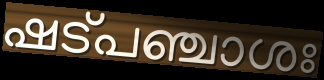
ഷട്പഞ്ചാശഃ